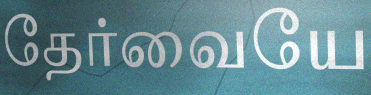
தேர்வையே